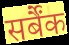
सर्बैंक